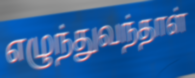
எழுந்துவந்தாள்